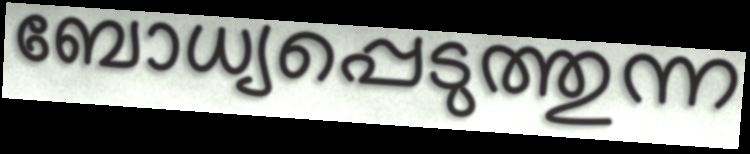
ബോധ്യപ്പെടുത്തുന്ന